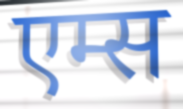
एम्स